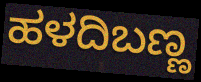
ಹಳದಿಬಣ್ಣ